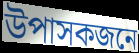
উপাসকজনে